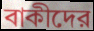
বাকীদের